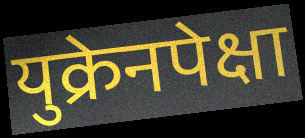
युक्रेनपेक्षा